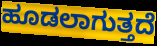
ಹೂಡಲಾಗುತ್ತದೆ